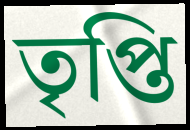
তৃপ্তি